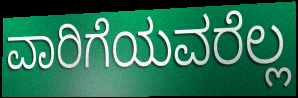
ವಾರಿಗೆಯವರೆಲ್ಲ